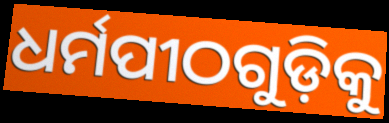
ଧର୍ମପୀଠଗୁଡ଼ିକୁ